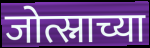
जोत्स्नाच्या